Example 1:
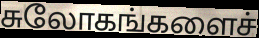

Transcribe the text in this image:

சுலோகங்களைச்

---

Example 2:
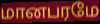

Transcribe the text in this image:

மானபரமே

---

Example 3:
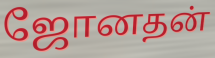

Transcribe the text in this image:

ஜோனதன்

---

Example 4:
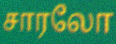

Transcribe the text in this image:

சாரலோ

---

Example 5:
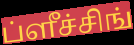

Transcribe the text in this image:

ப்ளீச்சிங்